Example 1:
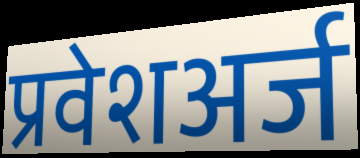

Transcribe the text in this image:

प्रवेशअर्ज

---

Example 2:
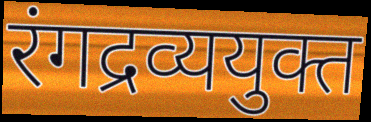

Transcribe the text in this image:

रंगद्रव्ययुक्त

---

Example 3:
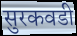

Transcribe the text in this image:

सुरकवडी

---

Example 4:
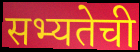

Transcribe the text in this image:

सभ्यतेची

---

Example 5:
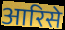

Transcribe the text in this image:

आरिसे